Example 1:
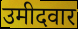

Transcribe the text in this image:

उमीदवार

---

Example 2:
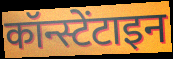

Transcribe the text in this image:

कॉन्स्टेंटाइन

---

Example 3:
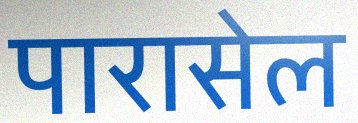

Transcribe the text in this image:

पारासेल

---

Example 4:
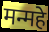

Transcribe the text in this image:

मन्महे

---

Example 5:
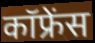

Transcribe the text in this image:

कॉफ्रेंस